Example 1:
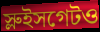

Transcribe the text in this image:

স্লুইসগেটও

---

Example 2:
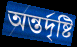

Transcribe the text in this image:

অন্তর্দৃষ্টি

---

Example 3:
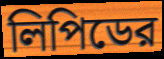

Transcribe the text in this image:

লিপিডের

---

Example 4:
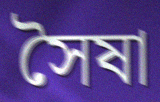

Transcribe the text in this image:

সৈষা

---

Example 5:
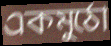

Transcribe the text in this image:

একমুঠো